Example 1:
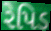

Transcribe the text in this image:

રેપિડ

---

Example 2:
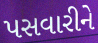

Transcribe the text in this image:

પસવારીને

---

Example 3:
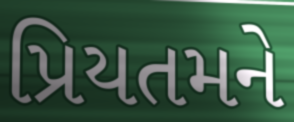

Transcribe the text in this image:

પ્રિયતમને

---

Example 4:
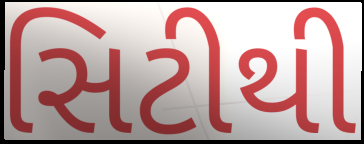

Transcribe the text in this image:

સિટીથી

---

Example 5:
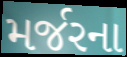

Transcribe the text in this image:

મર્જરના